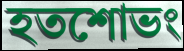
হতশোভং